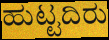
ಹುಟ್ಟದಿರು